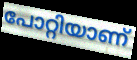
പോറ്റിയാണ്